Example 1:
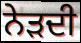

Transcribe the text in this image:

ਨੇੜਦੀ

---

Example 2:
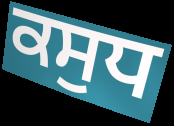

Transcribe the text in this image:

ਕਸੁਧ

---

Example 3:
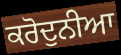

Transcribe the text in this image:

ਕਰੋਦੁਨੀਆ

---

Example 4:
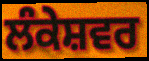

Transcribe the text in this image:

ਲੰਕੇਸ਼ਵਰ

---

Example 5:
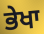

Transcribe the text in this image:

ਭੇਖਾ